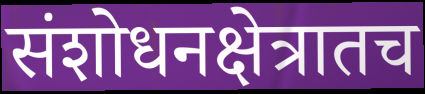
संशोधनक्षेत्रातच